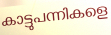
കാട്ടുപന്നികളെ